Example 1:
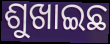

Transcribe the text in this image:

ଶୁଖାଇଛ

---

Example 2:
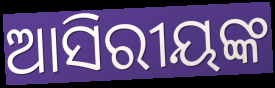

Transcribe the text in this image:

ଆସିରୀୟଙ୍କ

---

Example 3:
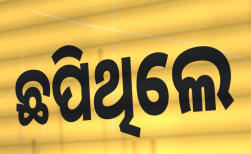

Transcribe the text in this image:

ଛପିଥିଲେ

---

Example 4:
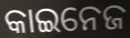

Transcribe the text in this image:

କାଇନେଜ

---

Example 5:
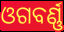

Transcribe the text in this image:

ଓଗବର୍ଣ୍ଣ